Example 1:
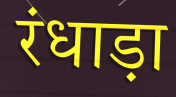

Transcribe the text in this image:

रंधाड़ा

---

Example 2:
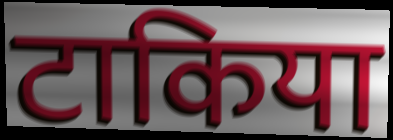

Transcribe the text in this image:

टाकिया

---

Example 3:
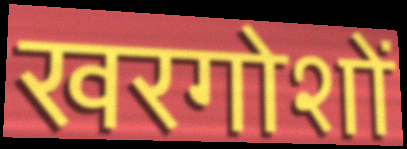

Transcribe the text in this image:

खरगोशों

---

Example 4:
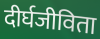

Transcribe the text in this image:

दीर्घजीविता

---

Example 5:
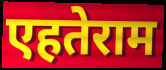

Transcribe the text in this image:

एहतेराम